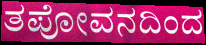
ತಪೋವನದಿಂದ